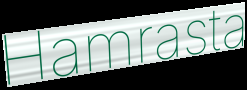
Hamrasta